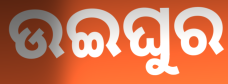
ଉଇଘୁର